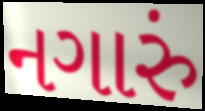
નગારું